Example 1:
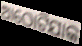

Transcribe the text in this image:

ଆଠୋଟିଯାକ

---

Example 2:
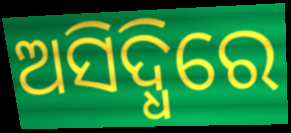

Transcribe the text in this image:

ଅସିଦ୍ଧିରେ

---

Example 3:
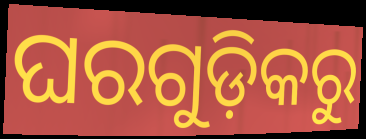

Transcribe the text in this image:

ଘରଗୁଡ଼ିକରୁ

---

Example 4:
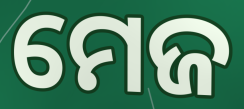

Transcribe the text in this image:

ମେଜ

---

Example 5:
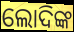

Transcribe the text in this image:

ଲୋଦିଙ୍କ